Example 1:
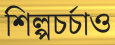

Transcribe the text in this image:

শিল্পচর্চাও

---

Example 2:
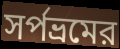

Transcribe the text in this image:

সর্পভ্রমের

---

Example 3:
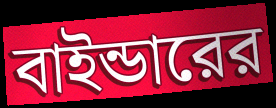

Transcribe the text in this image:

বাইন্ডারের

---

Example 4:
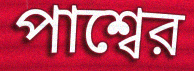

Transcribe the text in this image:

পাশ্বের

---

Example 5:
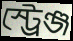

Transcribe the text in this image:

স্ট্রেঞ্জ